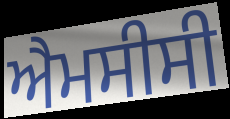
ਐਮਸੀਸੀ